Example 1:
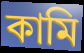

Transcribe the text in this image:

কামি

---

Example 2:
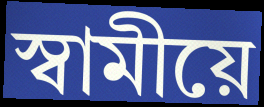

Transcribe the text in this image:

স্বামীয়ে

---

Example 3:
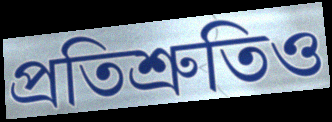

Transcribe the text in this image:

প্ৰতিশ্ৰুতিও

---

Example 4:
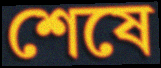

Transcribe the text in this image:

শেষে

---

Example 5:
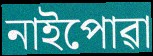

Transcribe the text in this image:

নাইপোৱা